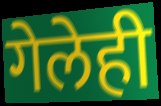
गेलेही